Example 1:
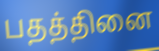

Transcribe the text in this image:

பதத்தினை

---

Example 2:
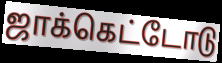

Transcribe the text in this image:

ஜாக்கெட்டோடு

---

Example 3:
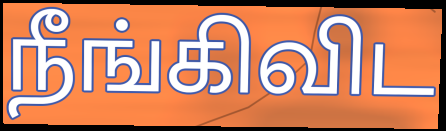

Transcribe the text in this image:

நீங்கிவிட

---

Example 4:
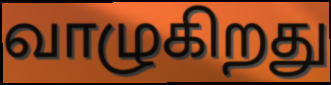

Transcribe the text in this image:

வாழுகிறது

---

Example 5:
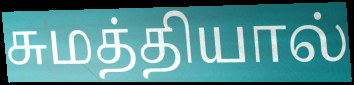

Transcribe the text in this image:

சுமத்தியால்